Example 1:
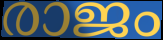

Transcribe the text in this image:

രാജം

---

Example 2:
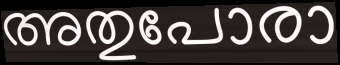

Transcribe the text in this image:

അതുപോരാ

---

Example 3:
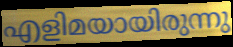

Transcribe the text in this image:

എളിമയായിരുന്നു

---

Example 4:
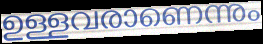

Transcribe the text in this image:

ഉള്ളവരാണെന്നും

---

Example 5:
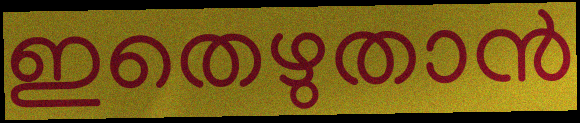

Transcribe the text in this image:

ഇതെഴുതാൻ